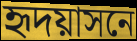
হৃদয়াসনে